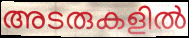
അടരുകളിൽ